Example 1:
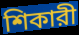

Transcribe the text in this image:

শিকারী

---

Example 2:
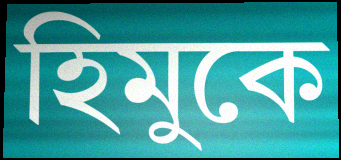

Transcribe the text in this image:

হিমুকে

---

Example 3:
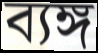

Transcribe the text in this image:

ব্যঙ্গ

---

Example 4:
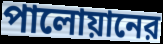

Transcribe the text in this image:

পালোয়ানের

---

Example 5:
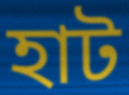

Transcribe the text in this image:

হাট